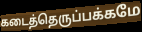
கடைத்தெருப்பக்கமே